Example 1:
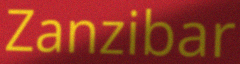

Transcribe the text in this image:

Zanzibar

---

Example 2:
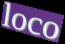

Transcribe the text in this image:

loco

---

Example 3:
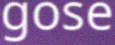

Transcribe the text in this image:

gose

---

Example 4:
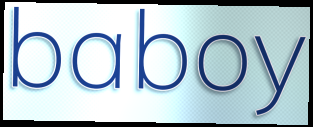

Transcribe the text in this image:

baboy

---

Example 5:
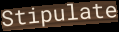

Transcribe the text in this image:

Stipulate